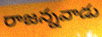
రాజన్నవాడు